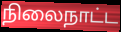
நிலைநாட்ட